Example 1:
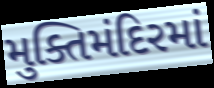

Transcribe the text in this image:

મુક્તિમંદિરમાં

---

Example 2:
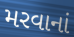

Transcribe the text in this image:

મરવાનાં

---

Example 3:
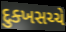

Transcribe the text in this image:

દુક્ખસચ્ચે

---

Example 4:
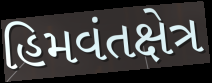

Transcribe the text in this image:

હિમવંતક્ષેત્ર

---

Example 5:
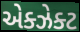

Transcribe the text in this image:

એક્ઝેક્ટ